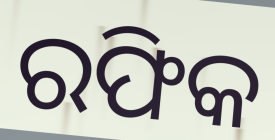
ରଫିକ